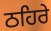
ਠਹਿਰੇ